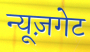
न्यूज़गेट